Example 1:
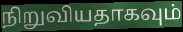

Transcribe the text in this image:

நிறுவியதாகவும்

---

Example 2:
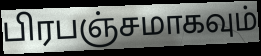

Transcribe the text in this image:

பிரபஞ்சமாகவும்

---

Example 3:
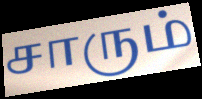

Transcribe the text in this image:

சாரும்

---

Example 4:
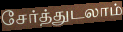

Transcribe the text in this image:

சேர்த்துடலாம்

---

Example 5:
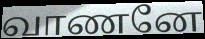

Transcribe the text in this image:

வாணனே